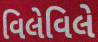
વિલેવિલે